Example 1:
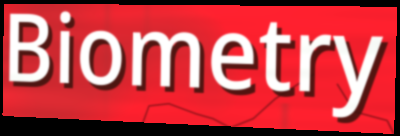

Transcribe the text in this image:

Biometry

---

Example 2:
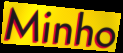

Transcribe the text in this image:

Minho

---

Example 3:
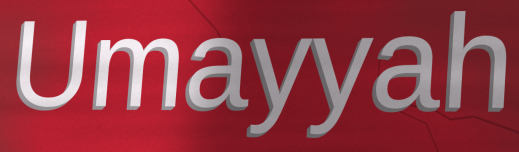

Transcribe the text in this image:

Umayyah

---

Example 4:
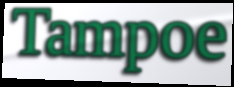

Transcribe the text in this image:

Tampoe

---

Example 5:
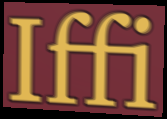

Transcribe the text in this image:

Iffi